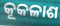
କୂକଳାଶ